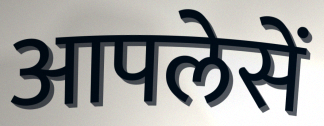
आपलेसें